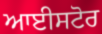
ਆਈਸਟੋਰ